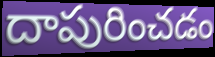
దాపురించడం